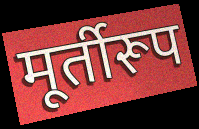
मूर्तीरूप